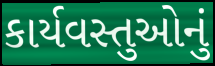
કાર્યવસ્તુઓનું